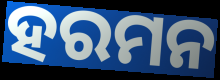
ହରମନ